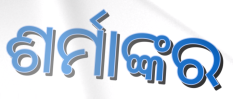
ଶର୍ମାଙ୍କର